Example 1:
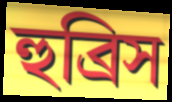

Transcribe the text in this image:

হুব্রিস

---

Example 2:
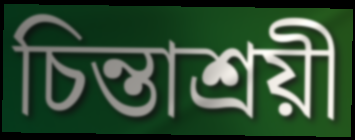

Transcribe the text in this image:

চিন্তাশ্রয়ী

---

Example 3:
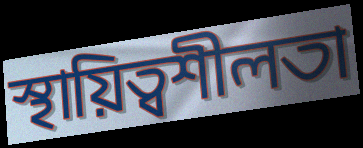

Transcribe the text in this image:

স্থায়িত্বশীলতা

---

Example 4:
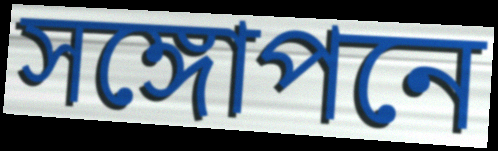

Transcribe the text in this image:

সঙ্গোপনে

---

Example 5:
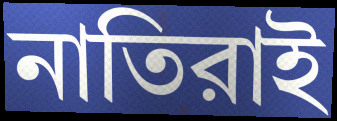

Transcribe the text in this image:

নাতিরাই